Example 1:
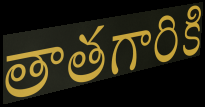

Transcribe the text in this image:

తాతగారికి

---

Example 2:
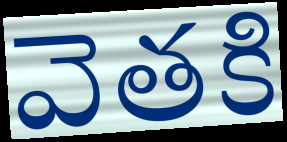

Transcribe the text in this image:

వెతకి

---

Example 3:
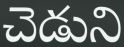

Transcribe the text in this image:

చెడుని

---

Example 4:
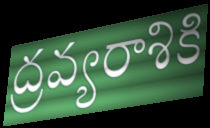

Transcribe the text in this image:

ద్రవ్యరాశికి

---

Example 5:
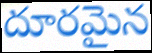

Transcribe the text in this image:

దూరమైన